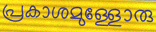
പ്രകാശമുള്ളോരു